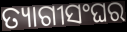
ତ୍ୟାଗୀସଂଘର